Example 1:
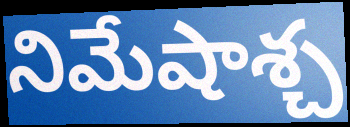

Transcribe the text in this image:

నిమేషాశ్చ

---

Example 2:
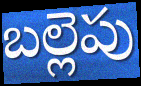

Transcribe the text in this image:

బల్లెపు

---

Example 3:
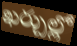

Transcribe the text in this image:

ఖర్చుల్లో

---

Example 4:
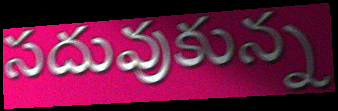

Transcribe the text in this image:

సదువుకున్న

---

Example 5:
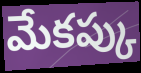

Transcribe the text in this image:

మేకప్కు